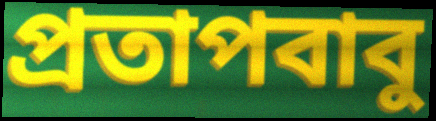
প্রতাপবাবু